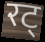
रट्